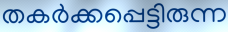
തകർക്കപ്പെട്ടിരുന്ന